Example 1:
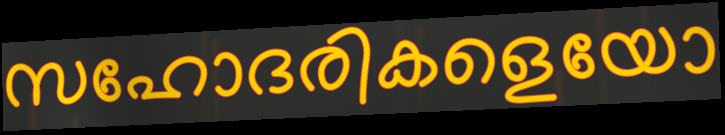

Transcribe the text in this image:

സഹോദരികളെയോ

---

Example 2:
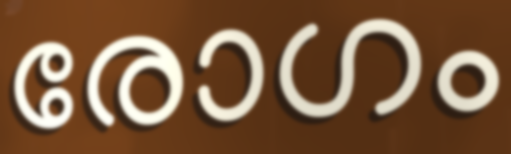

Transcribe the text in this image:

രോഗം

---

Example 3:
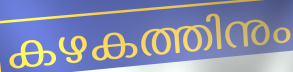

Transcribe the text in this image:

കഴകത്തിനും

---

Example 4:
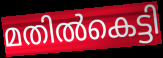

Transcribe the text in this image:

മതിൽകെട്ടി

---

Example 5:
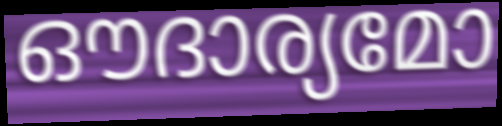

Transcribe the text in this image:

ഔദാര്യമോ